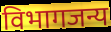
विभागजन्य